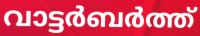
വാട്ടർബർത്ത്